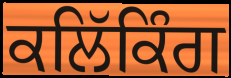
ਕਲਿੱਕਿੰਗ